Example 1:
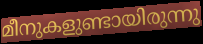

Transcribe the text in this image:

മീനുകളുണ്ടായിരുന്നു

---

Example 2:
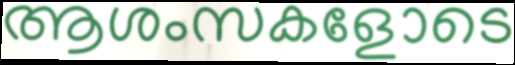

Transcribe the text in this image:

ആശംസകളോടെ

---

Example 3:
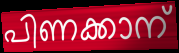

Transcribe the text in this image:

പിണക്കാന്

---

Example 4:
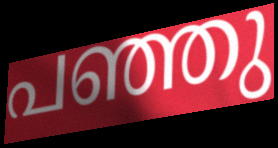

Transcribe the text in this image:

പഞ്ഞു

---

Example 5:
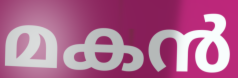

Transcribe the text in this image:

മകൻ